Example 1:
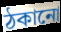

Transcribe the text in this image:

ঠকানো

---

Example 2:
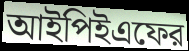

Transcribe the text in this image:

আইপিইএফের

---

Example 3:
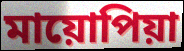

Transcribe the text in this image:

মায়োপিয়া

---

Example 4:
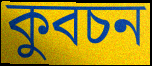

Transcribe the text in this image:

কুবচন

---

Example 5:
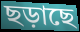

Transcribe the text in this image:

ছড়াছে